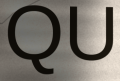
QU